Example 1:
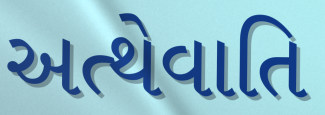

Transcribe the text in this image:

અત્થેવાતિ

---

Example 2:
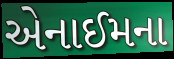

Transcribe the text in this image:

એનાઈમના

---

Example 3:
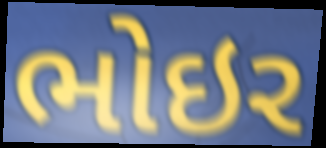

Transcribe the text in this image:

ભોઇર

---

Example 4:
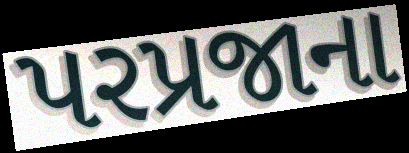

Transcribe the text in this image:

પરપ્રજાના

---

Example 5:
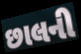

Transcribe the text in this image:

છાલની